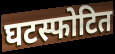
घटस्फोटित